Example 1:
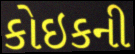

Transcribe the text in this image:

કોઇકની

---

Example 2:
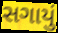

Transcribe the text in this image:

સગાયું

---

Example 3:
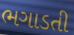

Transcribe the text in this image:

ભગાડતી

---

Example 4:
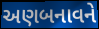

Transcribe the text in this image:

અણબનાવને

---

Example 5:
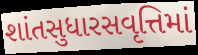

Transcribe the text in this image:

શાંતસુધારસવૃત્તિમાં